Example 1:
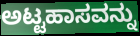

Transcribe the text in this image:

ಅಟ್ಟಹಾಸವನ್ನು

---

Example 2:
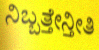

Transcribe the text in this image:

ನಿಬ್ಬತ್ತೇನ್ತೀತಿ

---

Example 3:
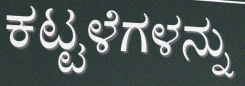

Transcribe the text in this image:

ಕಟ್ಟಳೆಗಳನ್ನು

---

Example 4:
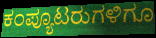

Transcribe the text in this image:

ಕಂಪ್ಯೂಟರುಗಳಿಗೂ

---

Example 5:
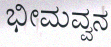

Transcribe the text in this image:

ಭೀಮವ್ವನ